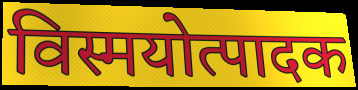
विस्मयोत्पादक